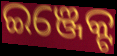
ଇଞ୍ଜେକ୍ଟ